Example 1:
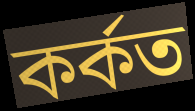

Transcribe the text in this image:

কৰ্কত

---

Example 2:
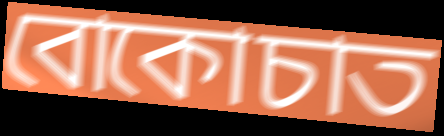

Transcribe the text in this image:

বোকোচাত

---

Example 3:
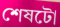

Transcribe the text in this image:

শেষটো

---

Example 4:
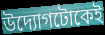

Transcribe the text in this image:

উদ্যোগটোকেই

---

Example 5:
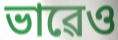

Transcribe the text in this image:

ভাৱেও